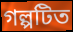
গল্পটিত